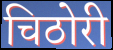
चिठोरी